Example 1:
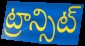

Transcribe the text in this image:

ట్రాన్సిట్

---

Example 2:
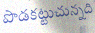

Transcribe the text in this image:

పొడకట్టుచున్నది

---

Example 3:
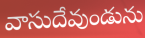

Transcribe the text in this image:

వాసుదేవుండును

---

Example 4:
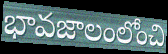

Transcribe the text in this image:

భావజాలంలోంచి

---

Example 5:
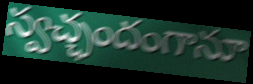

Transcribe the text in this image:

స్వచ్ఛందంగానూ